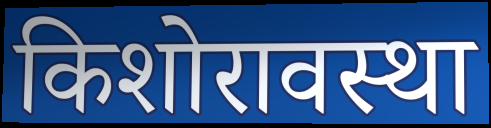
किशोरावस्था